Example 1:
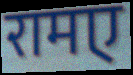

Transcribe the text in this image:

रामए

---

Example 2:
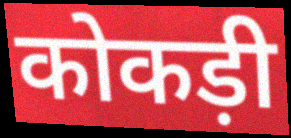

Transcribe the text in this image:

कोकड़ी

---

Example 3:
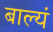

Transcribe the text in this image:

बाल्यं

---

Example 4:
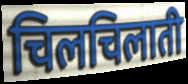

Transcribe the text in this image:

चिलचिलाती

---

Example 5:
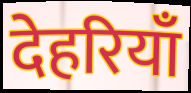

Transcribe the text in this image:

देहरियाँ